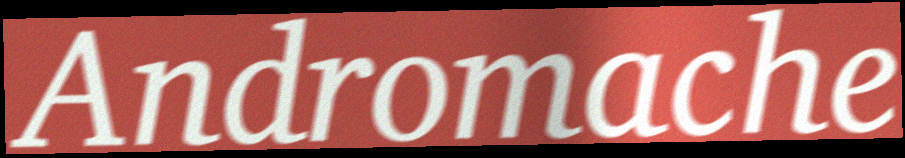
Andromache